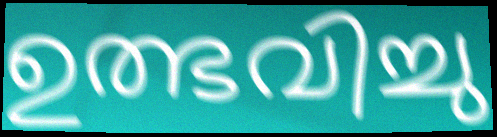
ഉത്ഭവിച്ചു